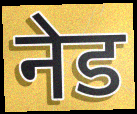
नेड